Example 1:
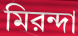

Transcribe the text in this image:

মিরন্দা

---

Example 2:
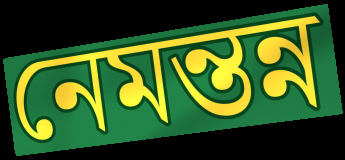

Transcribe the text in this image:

নেমন্তন্ন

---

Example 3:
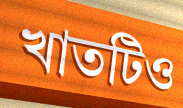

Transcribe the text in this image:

খাতটিও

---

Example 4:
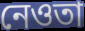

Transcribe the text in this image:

নেওতা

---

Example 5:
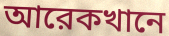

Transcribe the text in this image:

আরেকখানে